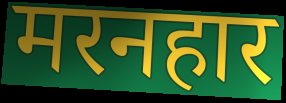
मरनहार